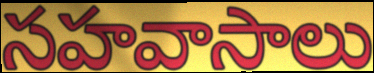
సహవాసాలు